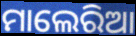
ମାଲେରିଆ